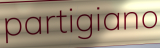
partigiano